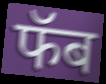
फॅब